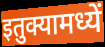
इतुक्यामध्यें